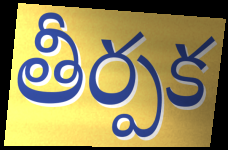
తీర్పక